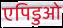
एपिडुओ